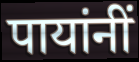
पायांनीं